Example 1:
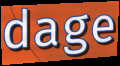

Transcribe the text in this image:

dage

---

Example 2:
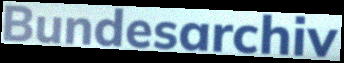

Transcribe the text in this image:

Bundesarchiv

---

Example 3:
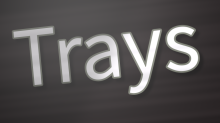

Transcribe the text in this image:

Trays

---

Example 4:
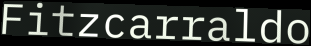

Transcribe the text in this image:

Fitzcarraldo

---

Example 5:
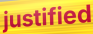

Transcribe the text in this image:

justified